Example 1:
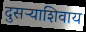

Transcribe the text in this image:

दुसऱ्याशिवाय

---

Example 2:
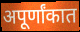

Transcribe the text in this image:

अपूर्णांकात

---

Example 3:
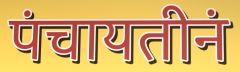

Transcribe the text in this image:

पंचायतीनं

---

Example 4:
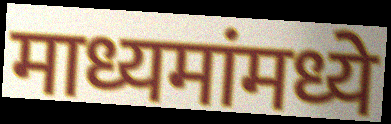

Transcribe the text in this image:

माध्यमांमध्ये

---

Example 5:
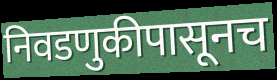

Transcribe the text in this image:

निवडणुकीपासूनच